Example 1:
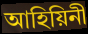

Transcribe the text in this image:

আহিয়িনী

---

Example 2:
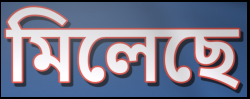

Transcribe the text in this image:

মিলেছে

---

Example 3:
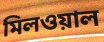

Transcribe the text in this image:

মিলওয়াল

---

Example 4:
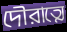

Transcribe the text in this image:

দৌরাত্মে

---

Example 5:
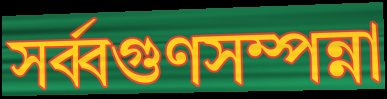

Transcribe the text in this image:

সর্ব্বগুণসম্পন্না